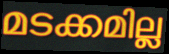
മടക്കമില്ല